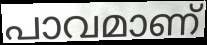
പാവമാണ്